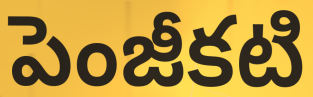
పెంజీకటి